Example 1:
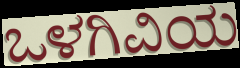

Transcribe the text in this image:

ಒಳಗಿವಿಯ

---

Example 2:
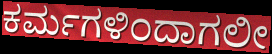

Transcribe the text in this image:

ಕರ್ಮಗಳಿಂದಾಗಲೀ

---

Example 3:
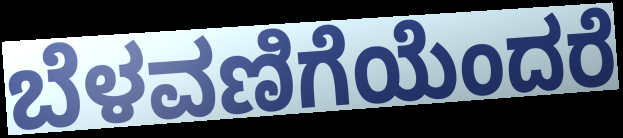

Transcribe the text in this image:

ಬೆಳವಣಿಗೆಯೆಂದರೆ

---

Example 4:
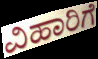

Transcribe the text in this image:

ವಿಹಾರಿಗೆ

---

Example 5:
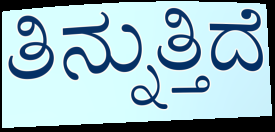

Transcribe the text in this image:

ತಿನ್ನುತ್ತಿದೆ